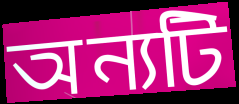
অন্যটি